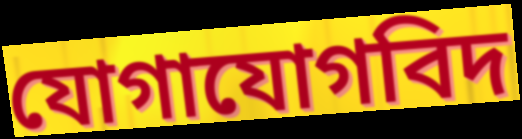
যোগাযোগবিদ